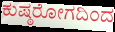
ಕುಷ್ಠರೋಗದಿಂದ